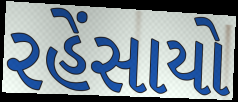
રહેંસાયો